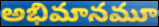
అభిమానమూ